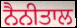
ਨੈਨੀਤਾਲ